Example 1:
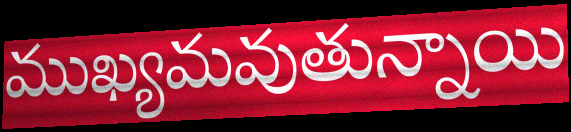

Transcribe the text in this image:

ముఖ్యమవుతున్నాయి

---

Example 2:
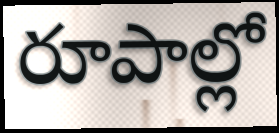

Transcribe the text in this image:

రూపాల్లో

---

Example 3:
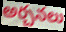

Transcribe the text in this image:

అర్చనలు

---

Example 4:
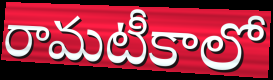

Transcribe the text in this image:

రామటీకాలో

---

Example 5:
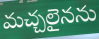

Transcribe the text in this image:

మచ్చలైనను